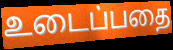
உடைப்பதை